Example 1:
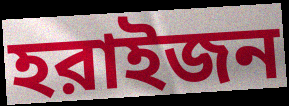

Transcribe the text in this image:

হরাইজন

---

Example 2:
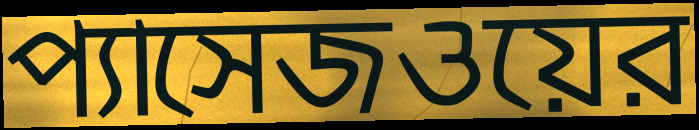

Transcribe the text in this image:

প্যাসেজওয়ের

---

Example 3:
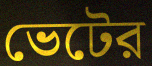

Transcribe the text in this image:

ভেটের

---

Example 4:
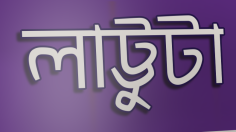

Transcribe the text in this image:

লাট্টুটা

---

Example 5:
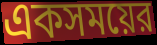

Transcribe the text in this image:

একসময়ের